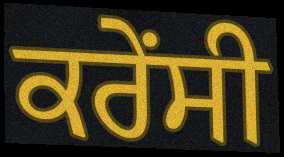
ਕਰੇੰਸੀ